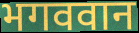
भगववान